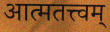
आत्मतत्त्वम्